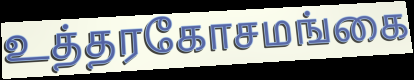
உத்தரகோசமங்கை